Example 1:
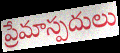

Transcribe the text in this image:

ప్రేమాస్పదులు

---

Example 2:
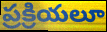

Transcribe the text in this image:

ప్రక్రియలూ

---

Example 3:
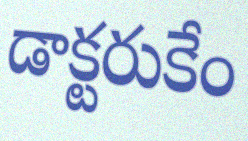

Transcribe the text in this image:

డాక్టరుకేం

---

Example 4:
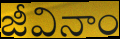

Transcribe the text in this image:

జీవినాం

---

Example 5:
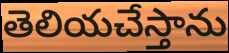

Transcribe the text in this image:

తెలియచేస్తాను